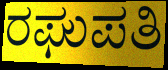
ರಘುಪತಿ